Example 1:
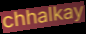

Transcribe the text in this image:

chhalkay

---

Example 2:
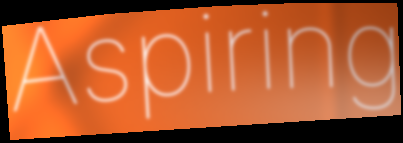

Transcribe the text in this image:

Aspiring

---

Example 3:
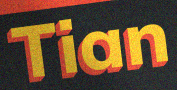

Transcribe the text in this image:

Tian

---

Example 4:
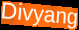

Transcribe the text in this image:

Divyang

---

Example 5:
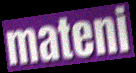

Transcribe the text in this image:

mateni